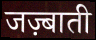
जज़्बाती